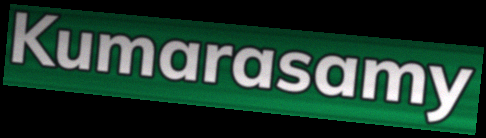
Kumarasamy